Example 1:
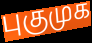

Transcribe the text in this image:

புகுமுக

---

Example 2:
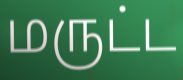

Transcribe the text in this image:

மருட்ட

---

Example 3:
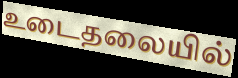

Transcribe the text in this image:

உடைதலையில்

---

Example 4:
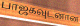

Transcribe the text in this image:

பாஜகவுடனான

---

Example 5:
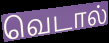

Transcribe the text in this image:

வெடால்